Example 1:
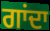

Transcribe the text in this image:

ਗਾਂਦਾ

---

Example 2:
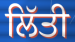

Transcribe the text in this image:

ਲਿੱਤੀ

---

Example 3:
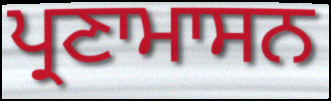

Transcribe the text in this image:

ਪ੍ਰਣਾਮਾਸਨ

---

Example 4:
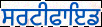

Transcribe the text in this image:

ਸਰਟੀਫਾਇਡ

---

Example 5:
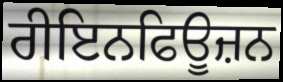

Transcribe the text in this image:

ਰੀਇਨਫਿਊਜ਼ਨ